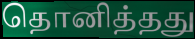
தொனித்தது